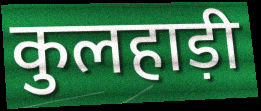
कुलहाड़ी